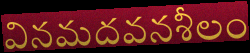
వినమదవనశీలం